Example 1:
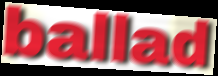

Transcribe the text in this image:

ballad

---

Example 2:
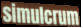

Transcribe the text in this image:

simulcrum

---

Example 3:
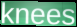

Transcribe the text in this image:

knees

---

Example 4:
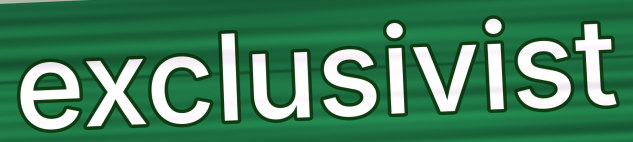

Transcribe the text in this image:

exclusivist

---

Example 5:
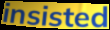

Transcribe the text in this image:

insisted